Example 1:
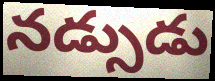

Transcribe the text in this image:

నడ్సుడు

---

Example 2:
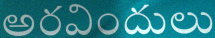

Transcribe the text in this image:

అరవిందులు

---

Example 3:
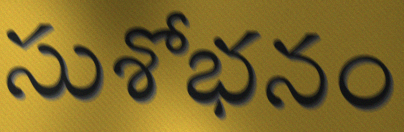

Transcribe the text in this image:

సుశోభనం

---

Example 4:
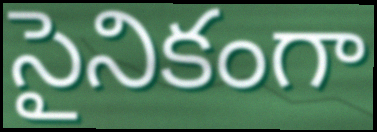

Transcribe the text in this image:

సైనికంగా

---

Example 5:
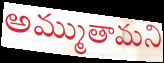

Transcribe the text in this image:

అమ్ముతామని